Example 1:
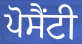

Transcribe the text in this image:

ਪੋਸੈਂਟੀ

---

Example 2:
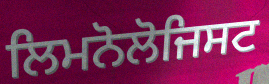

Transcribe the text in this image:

ਲਿਮਨੋਲੋਜਿਸਟ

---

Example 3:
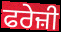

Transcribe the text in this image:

ਫਰੇਜ਼ੀ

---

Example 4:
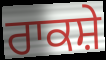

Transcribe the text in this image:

ਰਾਕਸ਼ੇ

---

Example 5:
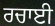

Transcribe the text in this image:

ਰਚਾਈ